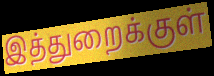
இத்துறைக்குள்